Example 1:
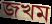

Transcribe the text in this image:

জখম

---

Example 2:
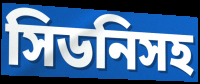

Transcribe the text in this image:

সিডনিসহ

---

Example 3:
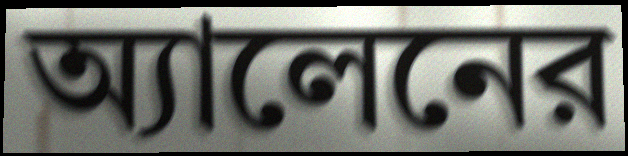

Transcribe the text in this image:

অ্যালেনের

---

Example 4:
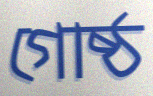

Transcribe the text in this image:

গোষ্ঠ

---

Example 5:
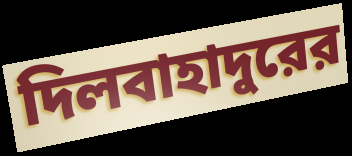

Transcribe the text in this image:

দিলবাহাদুরের